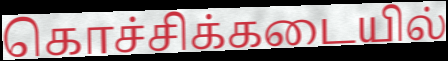
கொச்சிக்கடையில்